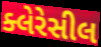
ક્લેરેસીલ